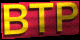
BTP